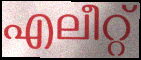
എലീറ്റ്